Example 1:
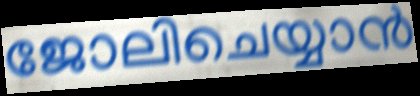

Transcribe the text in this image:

ജോലിചെയ്യാൻ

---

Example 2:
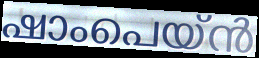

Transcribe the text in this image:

ഷാംപെയ്ൻ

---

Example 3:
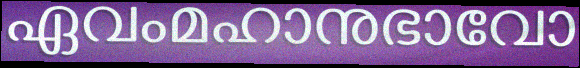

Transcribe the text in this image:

ഏവംമഹാനുഭാവോ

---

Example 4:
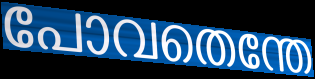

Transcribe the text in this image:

പോവതെന്തേ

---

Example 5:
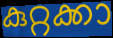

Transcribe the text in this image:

കുറ്റക്കാ